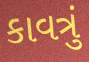
કાવત્રું